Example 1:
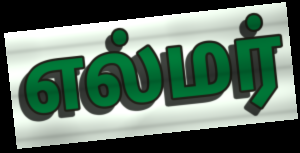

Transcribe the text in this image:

எல்மர்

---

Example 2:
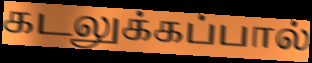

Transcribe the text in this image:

கடலுக்கப்பால்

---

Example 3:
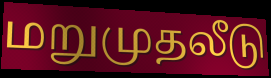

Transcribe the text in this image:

மறுமுதலீடு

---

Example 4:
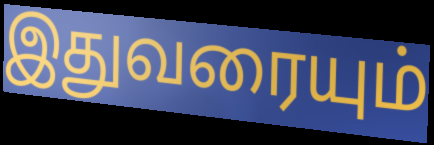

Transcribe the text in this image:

இதுவரையும்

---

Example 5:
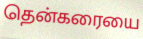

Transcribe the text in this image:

தென்கரையை